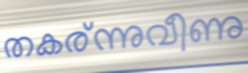
തകര്ന്നുവീണു